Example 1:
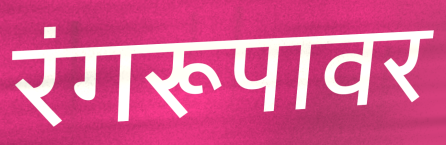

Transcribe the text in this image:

रंगरूपावर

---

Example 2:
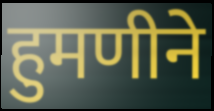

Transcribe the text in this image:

हुमणीने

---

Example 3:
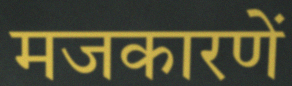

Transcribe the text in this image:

मजकारणें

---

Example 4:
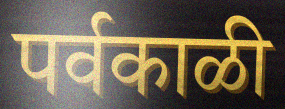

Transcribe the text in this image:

पर्वकाळी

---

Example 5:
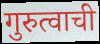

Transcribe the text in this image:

गुरुत्वाची